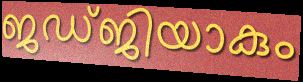
ജഡ്ജിയാകും